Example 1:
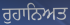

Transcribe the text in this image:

ਰੁਹਾਨਿਅਤ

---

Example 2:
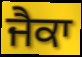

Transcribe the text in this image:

ਜੈਕਾ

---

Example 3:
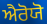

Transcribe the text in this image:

ਐਰੋਯੋ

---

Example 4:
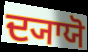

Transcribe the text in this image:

ਦ੍ਯਾਯੋ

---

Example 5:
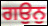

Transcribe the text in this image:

ਗਉਨੁ